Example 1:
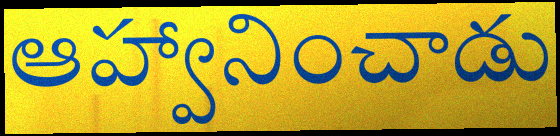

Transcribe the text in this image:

ఆహ్వానించాడు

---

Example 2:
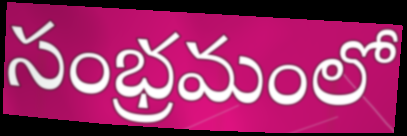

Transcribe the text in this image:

సంభ్రమంలో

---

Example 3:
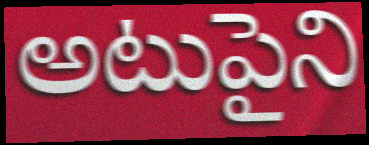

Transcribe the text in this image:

అటుపైని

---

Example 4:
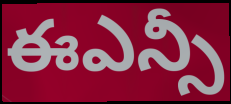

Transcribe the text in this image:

ఈఎన్సీ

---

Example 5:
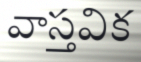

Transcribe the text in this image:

వాస్తవిక